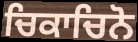
ਚਿਕਾਚਿਨੋ